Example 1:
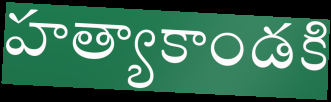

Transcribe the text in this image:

హత్యాకాండకి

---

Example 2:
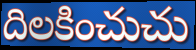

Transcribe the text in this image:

దిలకించుచు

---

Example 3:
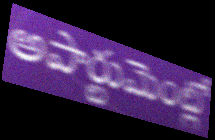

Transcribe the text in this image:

అపార్టుమెంట్లో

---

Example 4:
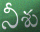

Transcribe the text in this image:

నీశు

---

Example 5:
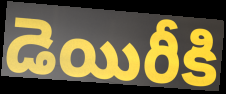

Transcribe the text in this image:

డెయిరీకి